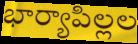
భార్యాపిల్లల